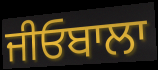
ਜੀਓਬਾਲਾ